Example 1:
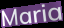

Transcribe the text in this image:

Maria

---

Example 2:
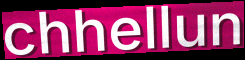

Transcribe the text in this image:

chhellun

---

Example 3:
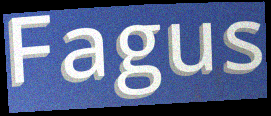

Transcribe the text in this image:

Fagus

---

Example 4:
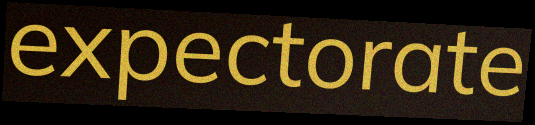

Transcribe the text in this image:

expectorate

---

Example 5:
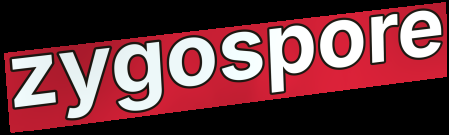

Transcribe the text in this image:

zygospore